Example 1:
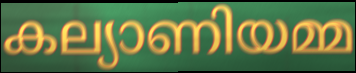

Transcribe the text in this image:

കല്യാണിയമ്മ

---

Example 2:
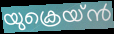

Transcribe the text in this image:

യുക്രെയ്ൻ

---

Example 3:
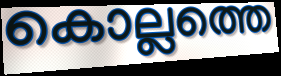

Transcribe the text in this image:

കൊല്ലത്തെ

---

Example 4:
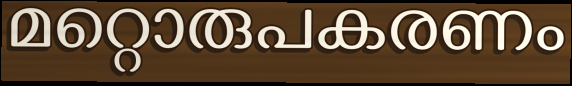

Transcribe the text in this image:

മറ്റൊരുപകരണം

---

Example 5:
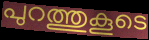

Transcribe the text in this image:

പുറത്തുകൂടെ